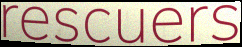
rescuers